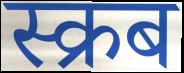
स्क्रब